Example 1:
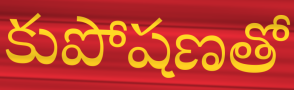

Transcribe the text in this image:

కుపోషణతో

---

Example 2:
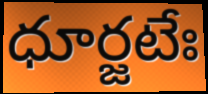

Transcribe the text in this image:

ధూర్జటేః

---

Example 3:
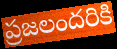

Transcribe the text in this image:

ప్రజలందరికి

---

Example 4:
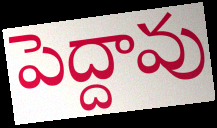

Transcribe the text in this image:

పెద్దావు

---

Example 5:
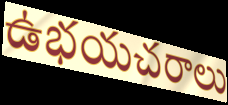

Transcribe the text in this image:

ఉభయచరాలు